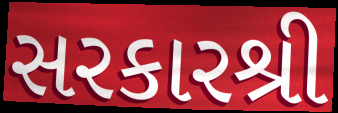
સરકારશ્રી